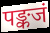
पङ्कजं